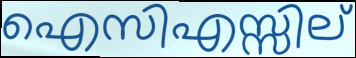
ഐസിഎസ്സില്